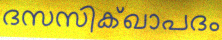
ദസസിക്ഖാപദം